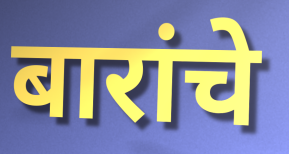
बारांचे